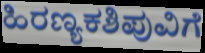
ಹಿರಣ್ಯಕಶಿಪುವಿಗೆ